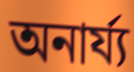
অনাৰ্য্য